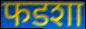
फडशा